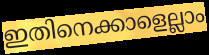
ഇതിനെക്കാളെല്ലാം